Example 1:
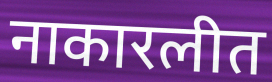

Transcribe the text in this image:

नाकारलीत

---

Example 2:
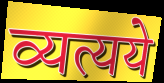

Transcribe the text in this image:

व्यत्यये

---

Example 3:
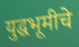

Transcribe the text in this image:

युद्धभूमीचे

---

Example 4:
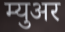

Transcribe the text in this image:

म्युअर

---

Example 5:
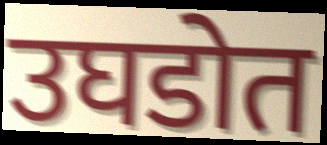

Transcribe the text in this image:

उघडोत